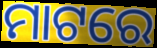
ମାଟରେ